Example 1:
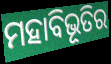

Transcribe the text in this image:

ମହାବିଭୂତିର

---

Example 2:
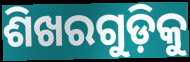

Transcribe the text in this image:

ଶିଖରଗୁଡ଼ିକୁ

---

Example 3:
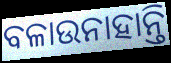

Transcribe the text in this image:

ବଳାଉନାହାନ୍ତି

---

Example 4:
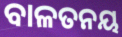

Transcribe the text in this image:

ବାଳତନୟ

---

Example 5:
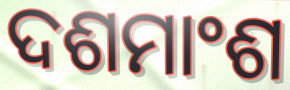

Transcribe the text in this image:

ଦଶମାଂଶ